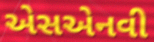
એસએનવી